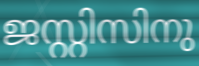
ജസ്റ്റിസിനു